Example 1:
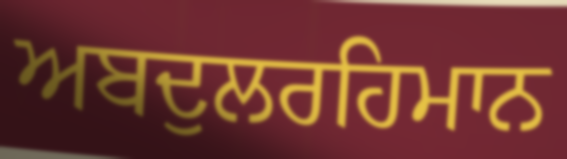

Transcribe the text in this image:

ਅਬਦੁਲਰਹਿਮਾਨ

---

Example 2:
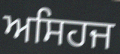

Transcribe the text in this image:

ਅਸਿਹਜ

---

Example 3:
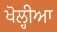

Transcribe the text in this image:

ਖੋਲ੍ਹੀਆ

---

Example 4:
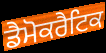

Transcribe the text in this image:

ਡੈਮੋਕਰੈਟਿਕ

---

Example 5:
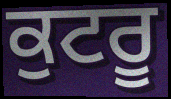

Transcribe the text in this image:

ਕੁਟਰੂ